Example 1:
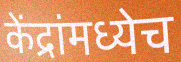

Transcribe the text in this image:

केंद्रांमध्येच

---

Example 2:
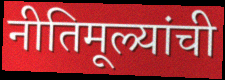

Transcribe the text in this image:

नीतिमूल्यांची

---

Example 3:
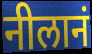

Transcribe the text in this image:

नीलानं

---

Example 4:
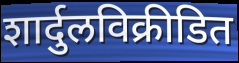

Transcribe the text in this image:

शार्दुलविक्रीडित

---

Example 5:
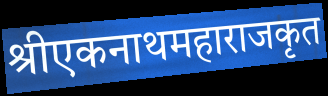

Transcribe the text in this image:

श्रीएकनाथमहाराजकृत